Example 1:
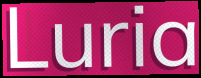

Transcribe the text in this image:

Luria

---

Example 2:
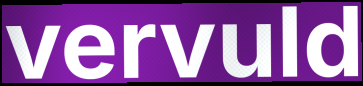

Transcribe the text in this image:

vervuld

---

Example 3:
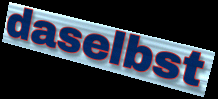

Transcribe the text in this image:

daselbst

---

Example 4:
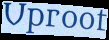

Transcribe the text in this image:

Uproot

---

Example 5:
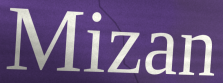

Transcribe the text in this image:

Mizan